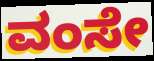
ವಂಸೇ